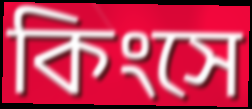
কিংসে